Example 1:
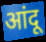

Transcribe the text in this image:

आंदू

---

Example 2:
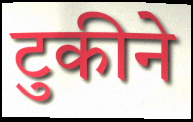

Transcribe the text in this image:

टुकीने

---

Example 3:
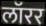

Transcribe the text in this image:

लॉरर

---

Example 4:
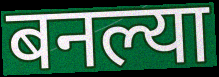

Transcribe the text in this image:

बनल्या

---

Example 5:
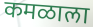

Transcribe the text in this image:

कमळाला